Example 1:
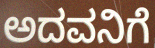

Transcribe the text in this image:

ಅದವನಿಗೆ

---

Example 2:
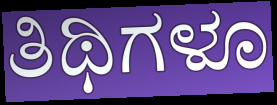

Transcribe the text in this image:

ತಿಥಿಗಳೂ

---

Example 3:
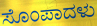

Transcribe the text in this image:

ಸೊಂಪಾದಳು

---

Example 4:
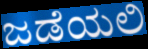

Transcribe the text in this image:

ಜಡೆಯಲಿ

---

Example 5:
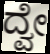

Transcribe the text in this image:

ದ್ವೇ